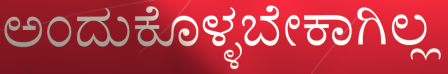
ಅಂದುಕೊಳ್ಳಬೇಕಾಗಿಲ್ಲ